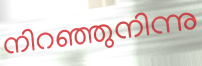
നിറഞ്ഞുനിന്നു